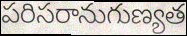
పరిసరానుగుణ్యత